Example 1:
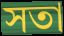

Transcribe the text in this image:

সতা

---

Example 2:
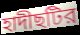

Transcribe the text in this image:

হাদীছটির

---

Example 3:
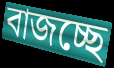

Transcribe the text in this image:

বাজচ্ছে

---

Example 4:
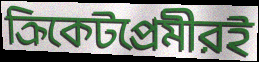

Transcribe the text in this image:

ক্রিকেটপ্রেমীরই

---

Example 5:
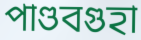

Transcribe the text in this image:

পাণ্ডবগুহা